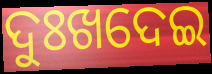
ଦୁଃଖଦେଇ